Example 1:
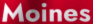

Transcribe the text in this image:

Moines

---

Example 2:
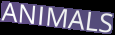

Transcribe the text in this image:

ANIMALS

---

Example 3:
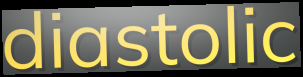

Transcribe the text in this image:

diastolic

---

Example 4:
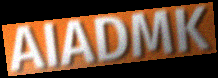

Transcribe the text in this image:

AIADMK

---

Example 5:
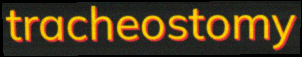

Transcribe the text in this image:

tracheostomy